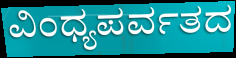
ವಿಂಧ್ಯಪರ್ವತದ